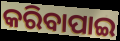
କରିବାପାଇ